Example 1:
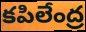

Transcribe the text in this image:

కపిలేంద్ర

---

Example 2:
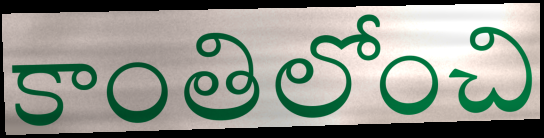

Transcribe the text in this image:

కాంతిలోంచి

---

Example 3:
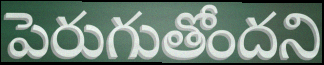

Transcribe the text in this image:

పెరుగుతోందని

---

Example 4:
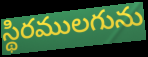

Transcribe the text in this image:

స్థిరములగును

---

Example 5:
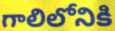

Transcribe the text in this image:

గాలిలోనికి